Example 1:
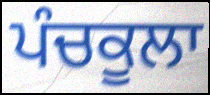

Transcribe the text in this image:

ਪੰਚਕੂਲਾ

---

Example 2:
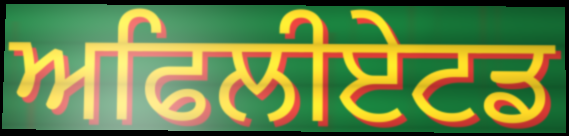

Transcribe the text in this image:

ਅਫਿਲੀਏਟਡ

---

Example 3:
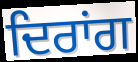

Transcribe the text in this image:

ਦਿਰਾਂਗ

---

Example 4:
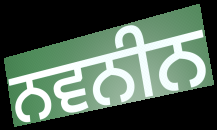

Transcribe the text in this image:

ਨਵਨੀਨ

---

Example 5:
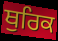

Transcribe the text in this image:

ਥੁਰਿਕ